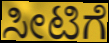
ಸೀಟಿಗೆ